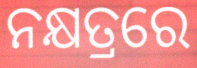
ନକ୍ଷତ୍ରରେ